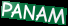
PANAM